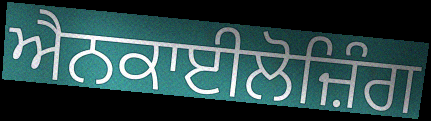
ਐਨਕਾਈਲੋਜ਼ਿੰਗ